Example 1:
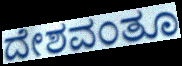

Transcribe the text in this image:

ದೇಶವಂತೂ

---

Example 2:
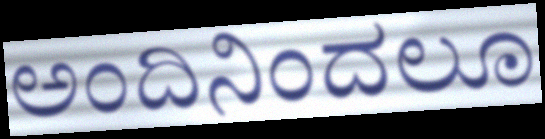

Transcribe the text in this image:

ಅಂದಿನಿಂದಲೂ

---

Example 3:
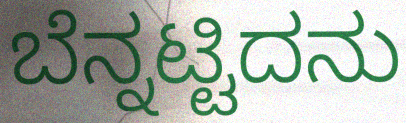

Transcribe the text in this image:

ಬೆನ್ನಟ್ಟಿದನು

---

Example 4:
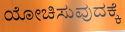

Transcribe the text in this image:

ಯೋಚಿಸುವುದಕ್ಕೆ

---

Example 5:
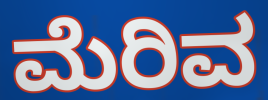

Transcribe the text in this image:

ಮೆರಿವ